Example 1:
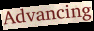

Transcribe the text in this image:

Advancing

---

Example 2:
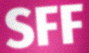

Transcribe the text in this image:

SFF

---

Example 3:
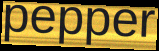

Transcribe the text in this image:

pepper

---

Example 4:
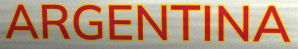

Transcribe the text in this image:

ARGENTINA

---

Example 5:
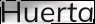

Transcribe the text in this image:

Huerta